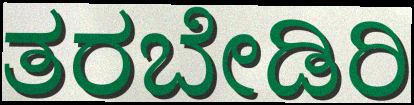
ತರಬೇಡಿರಿ